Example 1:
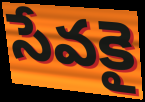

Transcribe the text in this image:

సేవకై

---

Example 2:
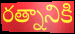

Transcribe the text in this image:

రత్నానికి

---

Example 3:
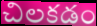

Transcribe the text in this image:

చిలకడం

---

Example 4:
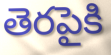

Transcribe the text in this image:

తెరపైకి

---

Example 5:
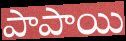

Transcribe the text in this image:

పాపాయి